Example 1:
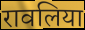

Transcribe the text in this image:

रावलिया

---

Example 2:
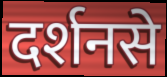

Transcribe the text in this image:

दर्शनसे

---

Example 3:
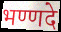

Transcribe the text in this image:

भण्णदे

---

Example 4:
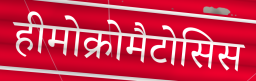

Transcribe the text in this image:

हीमोक्रोमैटोसिस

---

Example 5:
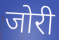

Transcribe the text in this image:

जोरी